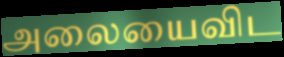
அலையைவிட